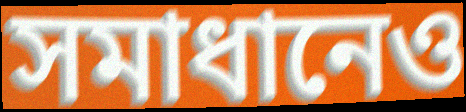
সমাধানেও